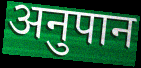
अनुपान